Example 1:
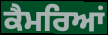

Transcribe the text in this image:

ਕੈਮਰਿਆਂ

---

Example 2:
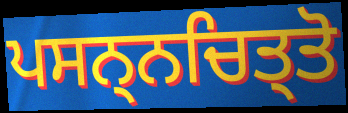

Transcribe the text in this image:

ਪਸਨ੍ਨਚਿਤ੍ਤੋ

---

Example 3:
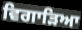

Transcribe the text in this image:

ਵਿਗਾੜਿਆ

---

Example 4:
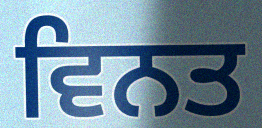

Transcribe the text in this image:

ਵਿਨਤ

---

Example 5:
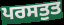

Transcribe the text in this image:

ਪਰਸਤੁਤ